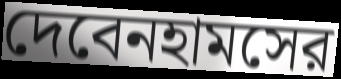
দেবেনহামসের